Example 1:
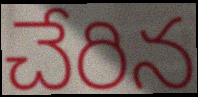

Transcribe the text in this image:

చేరిన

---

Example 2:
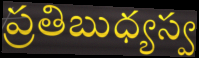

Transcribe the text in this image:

ప్రతిబుధ్యస్వ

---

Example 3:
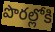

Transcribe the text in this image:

పొరల్లోకి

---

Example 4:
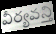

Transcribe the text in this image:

వీర్యవన్తి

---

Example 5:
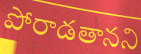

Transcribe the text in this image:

పోరాడతానని